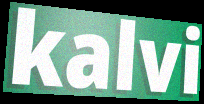
kalvi